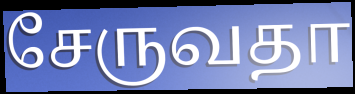
சேருவதா